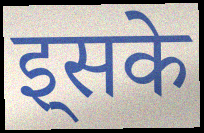
इ्सके